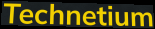
Technetium